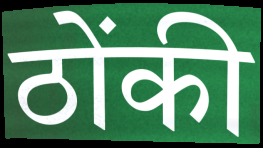
ठोंकी